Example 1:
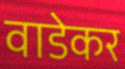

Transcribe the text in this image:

वाडेकर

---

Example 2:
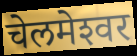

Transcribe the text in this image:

चेलमेश्‍वर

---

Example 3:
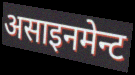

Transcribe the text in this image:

असाइनमेन्ट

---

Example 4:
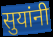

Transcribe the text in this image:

सुयांनी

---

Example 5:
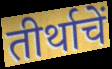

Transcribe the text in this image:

तीर्थाचें